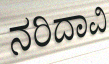
ನರಿದಾವಿ